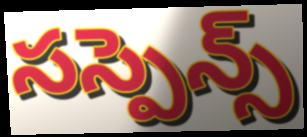
సస్పెన్స్